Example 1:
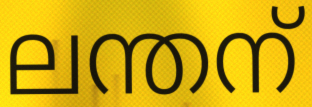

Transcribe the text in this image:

ലന്തന്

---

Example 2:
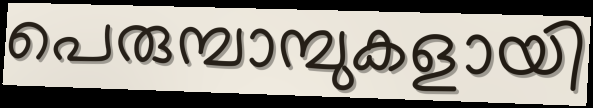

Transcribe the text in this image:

പെരുമ്പാമ്പുകളായി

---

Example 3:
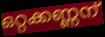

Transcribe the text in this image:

ഒറ്റക്കണ്ണന്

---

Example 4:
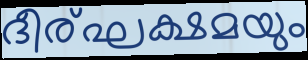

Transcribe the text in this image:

ദീര്ഘക്ഷമയും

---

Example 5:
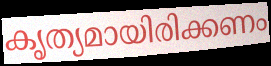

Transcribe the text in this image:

കൃത്യമായിരിക്കണം